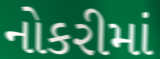
નોકરીમાં